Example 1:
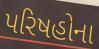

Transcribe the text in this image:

પરિષહોના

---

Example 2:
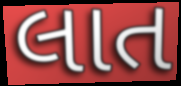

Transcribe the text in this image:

લાત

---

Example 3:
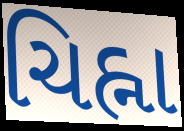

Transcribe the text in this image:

ચિહ્ના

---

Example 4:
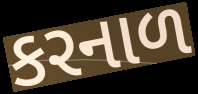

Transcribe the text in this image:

કરનાળ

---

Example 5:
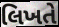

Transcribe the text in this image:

લિખતે